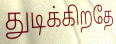
துடிக்கிறதே